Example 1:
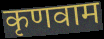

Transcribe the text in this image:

कृणवाम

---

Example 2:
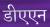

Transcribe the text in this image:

डीएएन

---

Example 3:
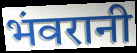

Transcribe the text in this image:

भंवरानी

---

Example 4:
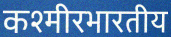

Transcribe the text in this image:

कश्मीरभारतीय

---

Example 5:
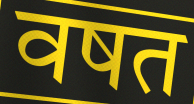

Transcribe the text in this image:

वषत